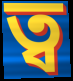
ত্ব